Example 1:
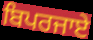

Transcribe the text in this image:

ਬਿਪਰਜਾਏ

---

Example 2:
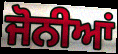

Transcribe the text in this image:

ਜੋਨੀਆਂ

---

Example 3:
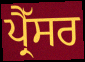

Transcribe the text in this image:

ਪ੍ਰੈੱਸਰ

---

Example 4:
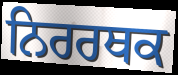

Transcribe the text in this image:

ਨਿਰਰਥਕ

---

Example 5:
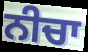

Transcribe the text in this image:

ਨੀਚਾ